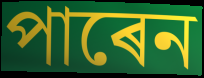
পাৰেন